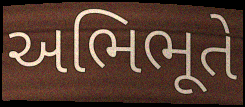
અભિભૂતે